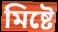
মিষ্টে